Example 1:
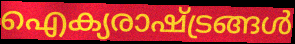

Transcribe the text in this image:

ഐക്യരാഷ്ട്രങ്ങൾ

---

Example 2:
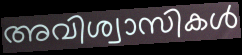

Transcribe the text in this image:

അവിശ്വാസികൾ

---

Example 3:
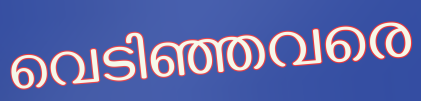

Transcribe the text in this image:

വെടിഞ്ഞവരെ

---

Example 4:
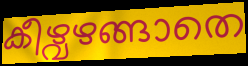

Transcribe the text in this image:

കീഴ്വഴങ്ങാതെ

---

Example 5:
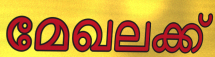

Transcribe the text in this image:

മേഖലക്ക്